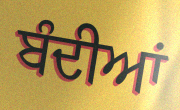
ਬੰਦੀਆਂ